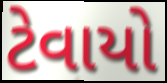
ટેવાયો